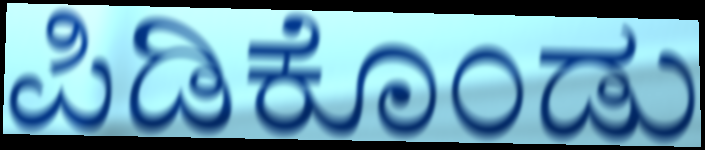
ಪಿಡಿಕೊಂಡು